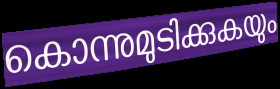
കൊന്നുമുടിക്കുകയും